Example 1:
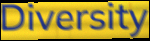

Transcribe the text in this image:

Diversity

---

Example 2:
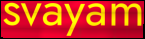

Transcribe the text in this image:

svayam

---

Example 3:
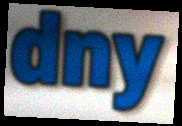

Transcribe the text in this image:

dny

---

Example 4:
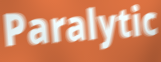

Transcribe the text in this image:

Paralytic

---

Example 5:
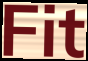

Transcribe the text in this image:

Fit